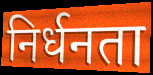
निर्धनता